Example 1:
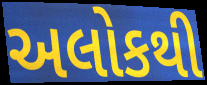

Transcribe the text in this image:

અલોકથી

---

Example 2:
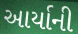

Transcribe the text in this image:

આર્યાની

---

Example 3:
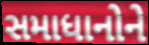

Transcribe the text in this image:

સમાધાનોને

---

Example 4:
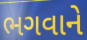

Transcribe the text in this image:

ભગવાને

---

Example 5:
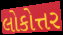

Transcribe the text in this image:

લોકોત્તર